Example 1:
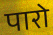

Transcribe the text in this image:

पारो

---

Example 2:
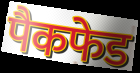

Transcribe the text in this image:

पैकफेड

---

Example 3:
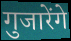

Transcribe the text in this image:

गुजारेंगे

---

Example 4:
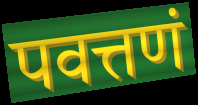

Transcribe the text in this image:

पवत्तणं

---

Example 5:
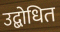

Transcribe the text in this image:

उद्बोधित